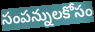
సంపన్నులకోసం